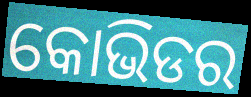
କୋଭିଡର